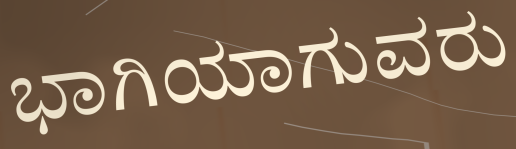
ಭಾಗಿಯಾಗುವರು